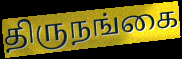
திருநங்கை